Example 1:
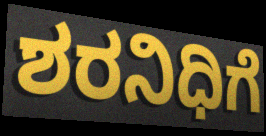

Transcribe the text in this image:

ಶರನಿಧಿಗೆ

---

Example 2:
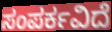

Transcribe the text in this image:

ಸಂಪರ್ಕವಿದೆ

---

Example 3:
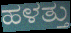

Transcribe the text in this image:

ಹಳತ್ತು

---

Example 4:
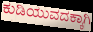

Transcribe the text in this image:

ಕುಡಿಯುವದಕ್ಕಾಗಿ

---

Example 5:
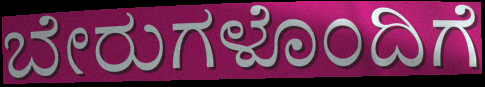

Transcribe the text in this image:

ಬೇರುಗಳೊಂದಿಗೆ